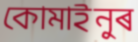
কোমাইনুৰ